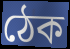
ঠেক